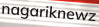
nagariknewz